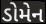
ડોમેન